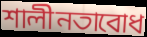
শালীনতাবোধ